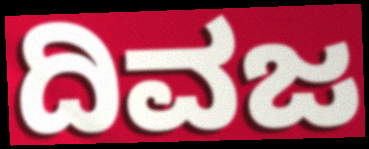
ದಿವಜ